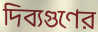
দিব্যগুণের